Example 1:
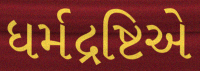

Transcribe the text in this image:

ધર્મદ્રષ્ટિએ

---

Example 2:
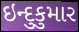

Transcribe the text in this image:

ઇન્દુકુમાર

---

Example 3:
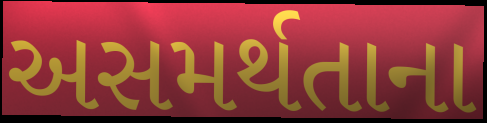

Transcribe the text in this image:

અસમર્થતાના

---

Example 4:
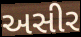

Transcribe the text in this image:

અસીર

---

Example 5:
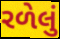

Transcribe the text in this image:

રળેલું